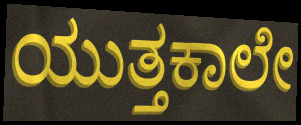
ಯುತ್ತಕಾಲೇ